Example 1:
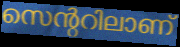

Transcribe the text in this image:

സെന്ററിലാണ്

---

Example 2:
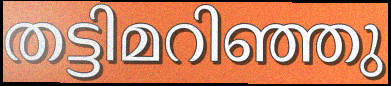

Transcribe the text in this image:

തട്ടിമറിഞ്ഞു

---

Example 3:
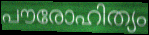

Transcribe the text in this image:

പൗരോഹിത്യം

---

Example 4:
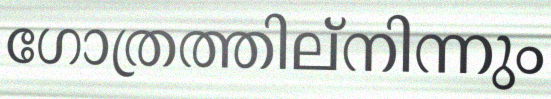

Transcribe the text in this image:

ഗോത്രത്തില്നിന്നും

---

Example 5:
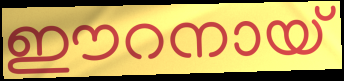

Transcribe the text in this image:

ഈറനായ്